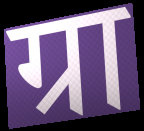
ग्रा